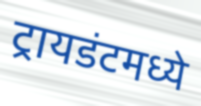
ट्रायडंटमध्ये